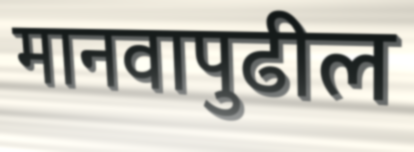
मानवापुढील